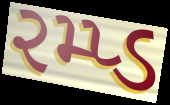
રમ્પ્ડ